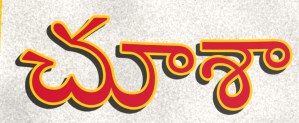
చూశా